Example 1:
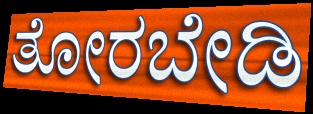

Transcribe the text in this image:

ತೋರಬೇಡಿ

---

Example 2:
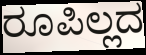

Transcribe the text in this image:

ರೂಪಿಲ್ಲದ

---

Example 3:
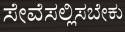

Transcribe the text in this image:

ಸೇವೆಸಲ್ಲಿಸಬೇಕು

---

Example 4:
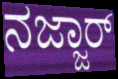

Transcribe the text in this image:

ನಜ್ಜಾರ್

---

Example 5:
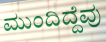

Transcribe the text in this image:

ಮುಂದಿದ್ದೆವು